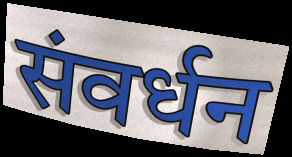
संवर्धन